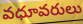
వధూవరులు